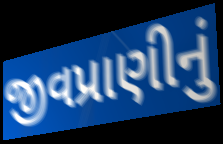
જીવપ્રાણીનું